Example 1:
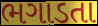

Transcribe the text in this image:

ભગાડતા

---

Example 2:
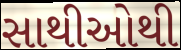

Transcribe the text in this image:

સાથીઓથી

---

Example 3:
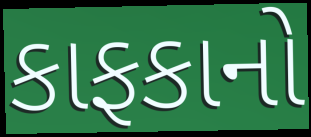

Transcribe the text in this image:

કાફકાનો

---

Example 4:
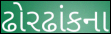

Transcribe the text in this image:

ઢોરઢાંકના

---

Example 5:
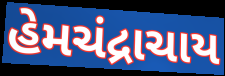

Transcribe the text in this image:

હેમચંદ્રાચાય